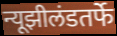
न्यूझीलंडतर्फे